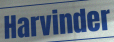
Harvinder